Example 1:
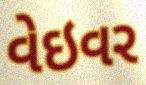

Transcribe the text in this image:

વેઇવર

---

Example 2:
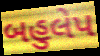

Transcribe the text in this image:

બહુલેપ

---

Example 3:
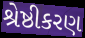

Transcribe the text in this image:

શ્રેષ્ઠીકરણ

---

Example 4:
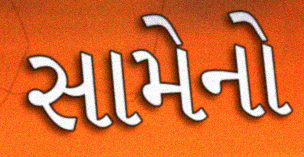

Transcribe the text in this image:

સામેનો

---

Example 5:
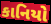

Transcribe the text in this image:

કાનિયો